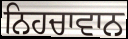
ਨਿਹਚਾਵਾਨ